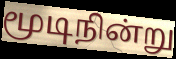
மூடிநின்று